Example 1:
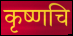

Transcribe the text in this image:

कृष्णचि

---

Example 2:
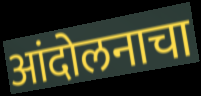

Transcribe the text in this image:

आंदोलनाचा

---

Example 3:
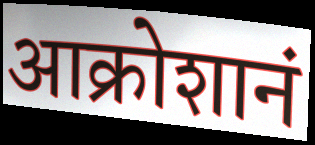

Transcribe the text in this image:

आक्रोशानं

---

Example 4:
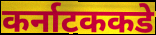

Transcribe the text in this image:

कर्नाटककडे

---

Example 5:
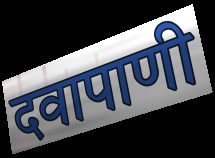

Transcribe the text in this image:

दवापाणी